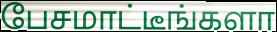
பேசமாட்டீங்களா